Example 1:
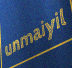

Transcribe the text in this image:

unmaiyil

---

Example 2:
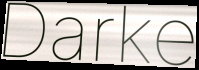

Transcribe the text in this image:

Darke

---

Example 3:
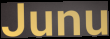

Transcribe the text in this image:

Junu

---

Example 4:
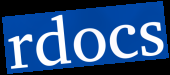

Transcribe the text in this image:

rdocs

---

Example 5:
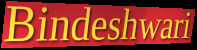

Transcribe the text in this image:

Bindeshwari